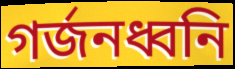
গর্জনধ্বনি